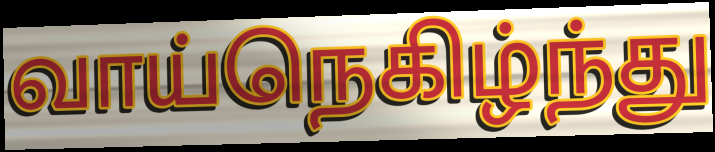
வாய்நெகிழ்ந்து